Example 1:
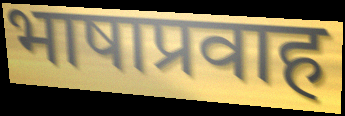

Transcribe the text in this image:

भाषाप्रवाह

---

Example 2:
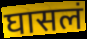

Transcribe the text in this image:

घासलं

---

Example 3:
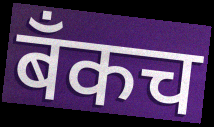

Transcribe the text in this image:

बँकच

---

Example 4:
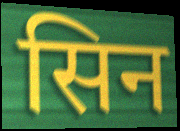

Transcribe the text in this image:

सिन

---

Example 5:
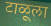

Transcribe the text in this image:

टाळूला